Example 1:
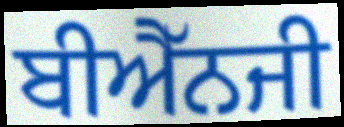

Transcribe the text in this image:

ਬੀਐੱਨਜੀ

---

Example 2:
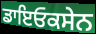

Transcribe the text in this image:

ਡਾਇਓਕਸੇਨ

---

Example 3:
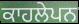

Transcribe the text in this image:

ਕਾਹਲੇਪਨ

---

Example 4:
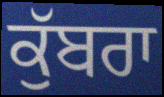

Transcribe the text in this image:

ਕੁੱਬਰਾ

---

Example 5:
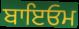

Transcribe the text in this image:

ਬਾਇਓਮ